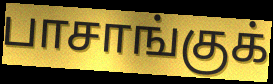
பாசாங்குக்